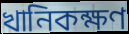
খানিকক্ষণ